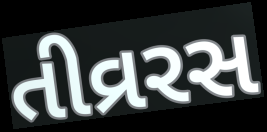
તીવ્રરસ